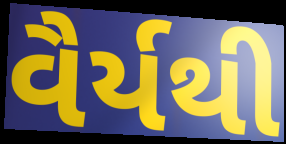
વૈર્યથી